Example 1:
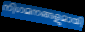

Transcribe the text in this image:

നിഗമനങ്ങളുമായി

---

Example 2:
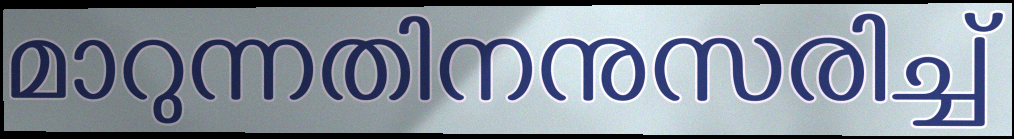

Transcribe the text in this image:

മാറുന്നതിനനുസരിച്ച്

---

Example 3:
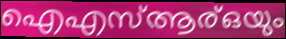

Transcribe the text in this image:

ഐഎസ്ആര്ഒയും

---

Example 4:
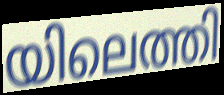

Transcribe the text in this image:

യിലെത്തി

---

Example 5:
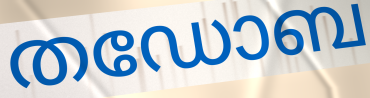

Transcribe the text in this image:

തഡോബ